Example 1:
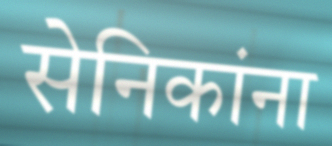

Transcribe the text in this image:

सेनिकांना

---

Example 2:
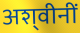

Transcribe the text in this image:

अश्वीनीं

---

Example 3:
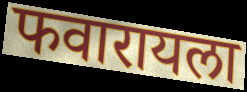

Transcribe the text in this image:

फवारायला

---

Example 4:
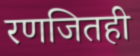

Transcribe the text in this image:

रणजितही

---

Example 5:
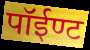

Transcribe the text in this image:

पॉईण्ट